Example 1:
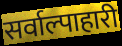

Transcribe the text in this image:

सर्वाल्पाहारी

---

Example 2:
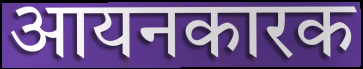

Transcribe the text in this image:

आयनकारक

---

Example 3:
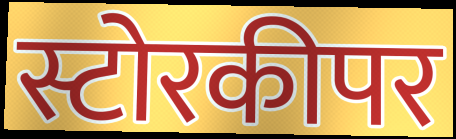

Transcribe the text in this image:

स्टोरकीपर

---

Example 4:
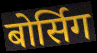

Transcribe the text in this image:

बोर्सिग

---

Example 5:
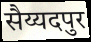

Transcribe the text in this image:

सैय्यदपुर